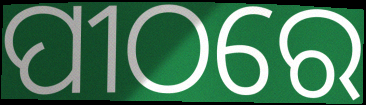
ପୀଠରେ